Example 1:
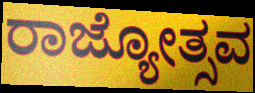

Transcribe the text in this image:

ರಾಜ್ಯೋತ್ಸವ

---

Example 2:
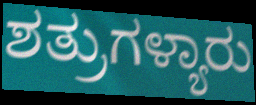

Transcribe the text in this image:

ಶತ್ರುಗಳ್ಯಾರು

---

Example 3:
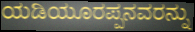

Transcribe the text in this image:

ಯಡಿಯೂರಪ್ಪನವರನ್ನು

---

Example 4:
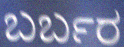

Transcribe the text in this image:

ಬರ್ಬರ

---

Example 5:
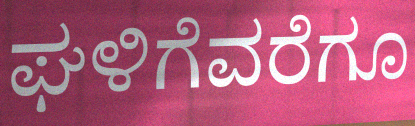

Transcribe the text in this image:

ಘಳಿಗೆವರೆಗೂ